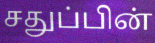
சதுப்பின்